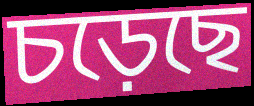
চড়েছে